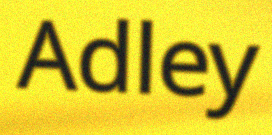
Adley